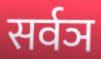
सर्वञ